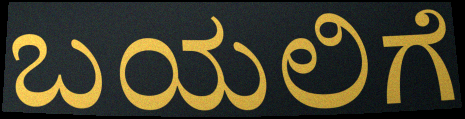
ಬಯಲಿಗೆ